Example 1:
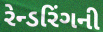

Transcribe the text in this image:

રેન્ડરિંગની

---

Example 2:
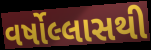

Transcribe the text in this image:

વર્ષોલ્લાસથી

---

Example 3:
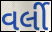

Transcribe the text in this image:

વર્લી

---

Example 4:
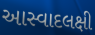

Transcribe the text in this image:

આસ્વાદલક્ષી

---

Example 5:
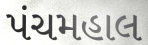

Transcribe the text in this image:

પંચમહાલ